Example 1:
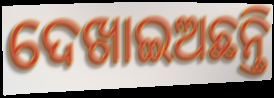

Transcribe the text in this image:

ଦେଖାଇଅଛନ୍ତି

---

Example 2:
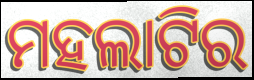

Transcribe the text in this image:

ମହଲାଟିର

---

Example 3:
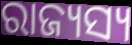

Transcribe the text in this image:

ରାଜ୍ୟସ୍ୟ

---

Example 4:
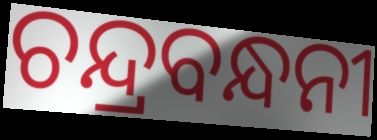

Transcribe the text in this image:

ଚନ୍ଦ୍ରବନ୍ଧନୀ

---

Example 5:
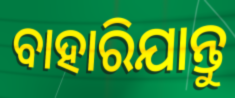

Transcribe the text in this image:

ବାହାରିଯାନ୍ତୁ